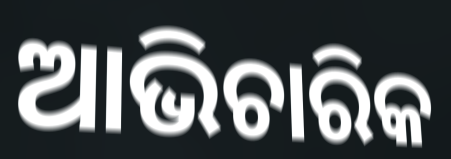
ଆଭିଚାରିକ